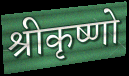
श्रीकृष्णो